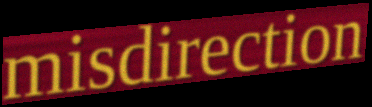
misdirection